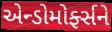
એન્ડોમોર્ફ્સને